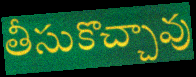
తీసుకొచ్చావు